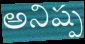
అనిష్ప